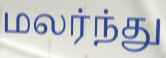
மலர்ந்து